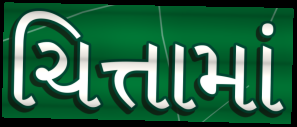
ચિત્તામાં